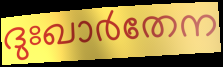
ദുഃഖാർതേന